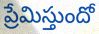
ప్రేమిస్తుందో